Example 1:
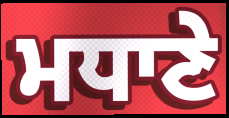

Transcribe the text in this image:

ਮਧਾਣੇ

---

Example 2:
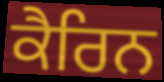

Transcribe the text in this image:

ਕੈਰਿਨ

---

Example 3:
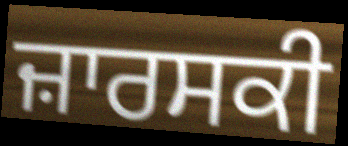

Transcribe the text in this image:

ਜ਼ਾਰਸਕੀ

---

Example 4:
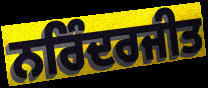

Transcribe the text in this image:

ਨਰਿੰਦਰਜੀਤ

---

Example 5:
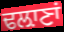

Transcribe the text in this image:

ਢਲ਼ਾਣਾਂ